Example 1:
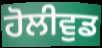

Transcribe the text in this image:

ਹੋਲੀਵੁਡ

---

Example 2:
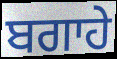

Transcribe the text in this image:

ਬਗਾਹੇ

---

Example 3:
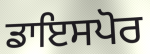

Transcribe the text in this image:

ਡਾਇਸਪੋਰ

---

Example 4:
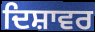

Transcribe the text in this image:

ਦਿਸ਼ਾਵਰ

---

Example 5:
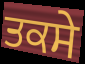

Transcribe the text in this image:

ਤਕਸੇ